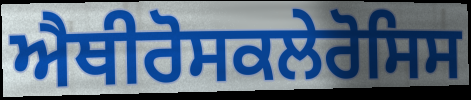
ਐਥੀਰੋਸਕਲੇਰੋਸਿਸ